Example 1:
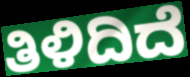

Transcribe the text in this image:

ತಿಳಿದಿದೆ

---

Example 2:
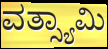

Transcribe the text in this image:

ವತ್ಸ್ಯಾಮಿ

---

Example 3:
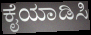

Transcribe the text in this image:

ಕೈಯಾಡಿಸಿ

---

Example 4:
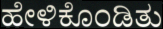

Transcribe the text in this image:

ಹೇಳಿಕೊಂಡಿತು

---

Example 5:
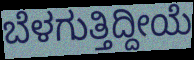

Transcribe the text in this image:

ಬೆಳಗುತ್ತಿದ್ದೀಯೆ